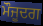
ਮੌਜੂਦਗ